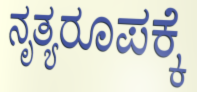
ನೃತ್ಯರೂಪಕ್ಕೆ